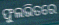
ଫୁଲଭିତରେ